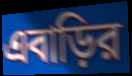
এবাড়ির